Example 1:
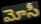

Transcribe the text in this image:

మోసీ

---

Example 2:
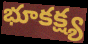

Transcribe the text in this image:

భూకక్ష్య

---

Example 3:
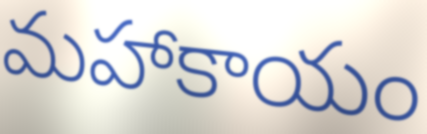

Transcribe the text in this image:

మహాకాయం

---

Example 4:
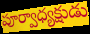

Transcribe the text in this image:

పూర్వాధ్యక్షుడు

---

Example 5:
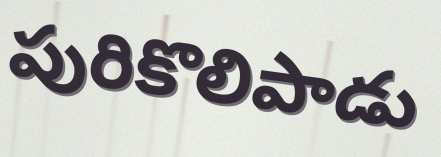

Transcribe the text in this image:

పురికొలిపాడు